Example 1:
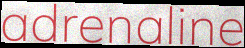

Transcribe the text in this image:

adrenaline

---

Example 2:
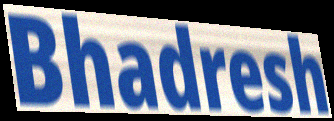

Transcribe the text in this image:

Bhadresh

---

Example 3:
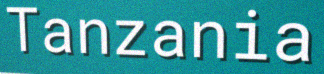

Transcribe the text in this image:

Tanzania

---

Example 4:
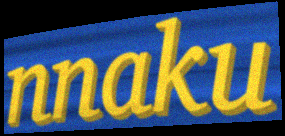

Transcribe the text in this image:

nnaku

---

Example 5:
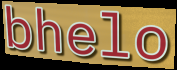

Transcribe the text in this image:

bhelo